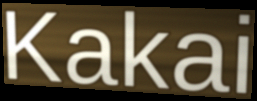
Kakai